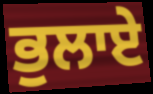
ਭੁਲਾਏ